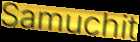
Samuchit